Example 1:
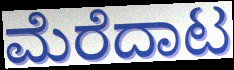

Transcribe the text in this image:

ಮೆರೆದಾಟ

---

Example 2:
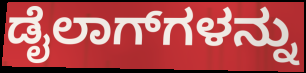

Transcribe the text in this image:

ಡೈಲಾಗ್‌ಗಳನ್ನು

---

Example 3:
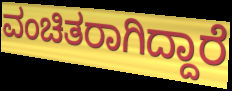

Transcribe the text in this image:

ವಂಚಿತರಾಗಿದ್ದಾರೆ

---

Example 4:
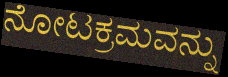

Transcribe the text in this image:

ನೋಟಕ್ರಮವನ್ನು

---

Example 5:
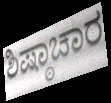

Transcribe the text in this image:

ಶಿಷ್ಠಾಚಾರ